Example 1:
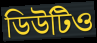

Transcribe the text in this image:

ডিউটিও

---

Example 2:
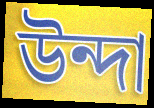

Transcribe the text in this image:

উন্দা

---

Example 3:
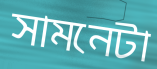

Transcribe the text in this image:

সামনেটা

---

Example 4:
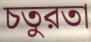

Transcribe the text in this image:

চতুরতা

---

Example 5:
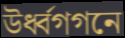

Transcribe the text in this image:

উর্ধ্বগগনে